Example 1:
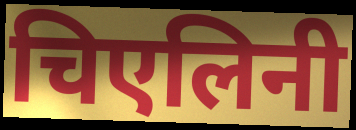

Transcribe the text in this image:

चिएलिनी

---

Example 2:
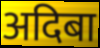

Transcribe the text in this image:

अदिबा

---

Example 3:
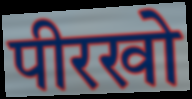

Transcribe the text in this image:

पीरखो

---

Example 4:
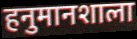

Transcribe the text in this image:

हनुमानशाला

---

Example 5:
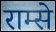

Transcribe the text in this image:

राम्से